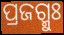
ପ୍ରଜଗ୍ମୁଃ